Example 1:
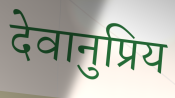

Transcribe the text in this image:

देवानुप्रिय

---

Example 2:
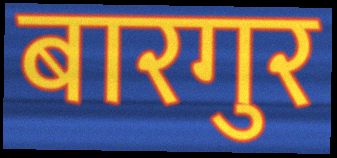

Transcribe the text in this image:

बारगुर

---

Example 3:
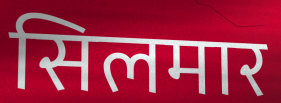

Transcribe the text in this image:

सिलमार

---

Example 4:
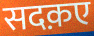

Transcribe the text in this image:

सदक़ए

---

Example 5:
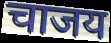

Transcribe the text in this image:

चाजय